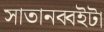
সাতানব্বইটা